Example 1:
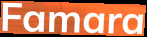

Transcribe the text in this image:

Famara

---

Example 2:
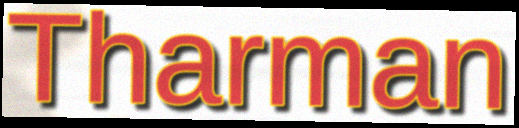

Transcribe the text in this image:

Tharman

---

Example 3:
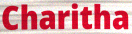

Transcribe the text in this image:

Charitha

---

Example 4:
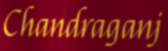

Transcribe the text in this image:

Chandraganj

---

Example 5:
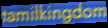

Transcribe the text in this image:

tamilkingdom